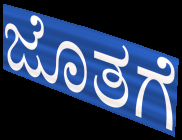
ಜೊತಗೆ